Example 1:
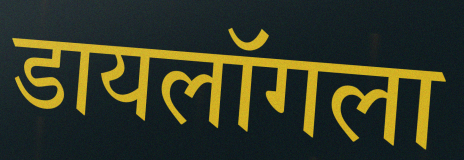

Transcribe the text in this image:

डायलॉगला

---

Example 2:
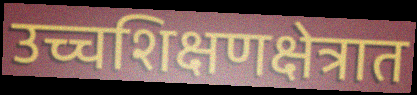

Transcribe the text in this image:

उच्चशिक्षणक्षेत्रात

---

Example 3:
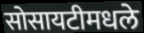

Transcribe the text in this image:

सोसायटीमधले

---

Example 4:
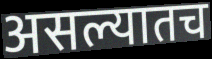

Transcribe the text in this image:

असल्यातच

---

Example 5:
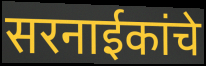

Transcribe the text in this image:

सरनाईकांचे